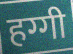
हग्गी